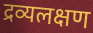
द्रव्यलक्षण